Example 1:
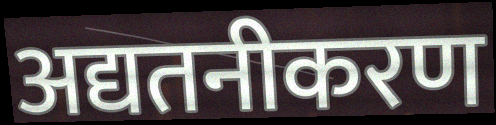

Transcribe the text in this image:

अद्यतनीकरण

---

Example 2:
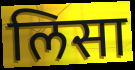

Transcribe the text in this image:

लिसा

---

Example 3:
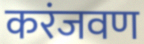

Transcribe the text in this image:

करंजवण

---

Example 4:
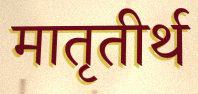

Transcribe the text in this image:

मातृतीर्थ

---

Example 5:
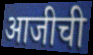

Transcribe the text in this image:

आजीची